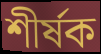
শীৰ্ষক